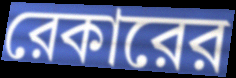
রেকারের